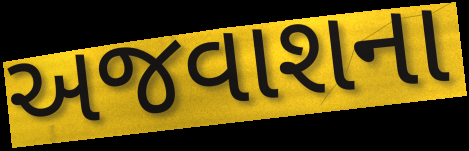
અજવાશના